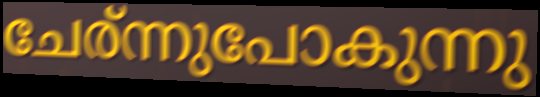
ചേര്ന്നുപോകുന്നു